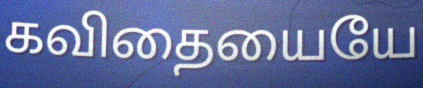
கவிதையையே